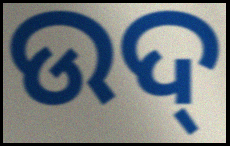
ଉଦ୍